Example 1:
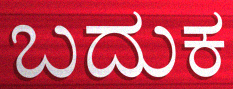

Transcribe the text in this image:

ಬದುಕ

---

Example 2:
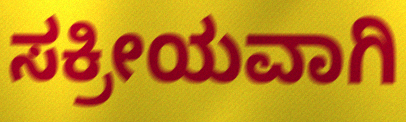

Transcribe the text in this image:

ಸಕ್ರೀಯವಾಗಿ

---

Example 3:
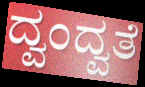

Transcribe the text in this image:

ದ್ವಂದ್ವತೆ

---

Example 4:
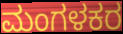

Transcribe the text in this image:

ಮಂಗಳಕರ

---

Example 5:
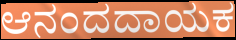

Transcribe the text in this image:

ಆನಂದದಾಯಕ